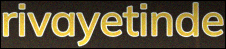
rivayetinde